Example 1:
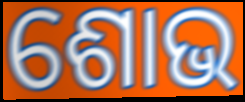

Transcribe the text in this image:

ଶୋଭ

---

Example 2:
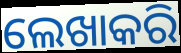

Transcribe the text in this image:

ଲେଖାକରି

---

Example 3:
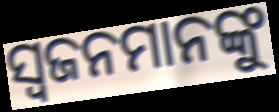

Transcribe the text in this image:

ସ୍ବଜନମାନଙ୍କୁ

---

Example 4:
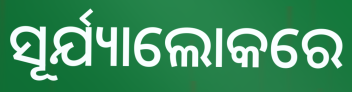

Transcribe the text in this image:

ସୂର୍ଯ୍ୟାଲୋକରେ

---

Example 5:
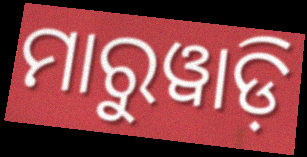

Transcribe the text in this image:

ମାରୁୱାଡ଼ି